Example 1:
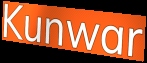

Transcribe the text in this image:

Kunwar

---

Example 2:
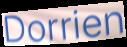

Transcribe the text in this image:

Dorrien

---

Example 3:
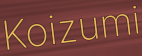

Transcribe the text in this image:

Koizumi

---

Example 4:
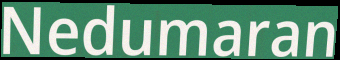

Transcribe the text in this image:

Nedumaran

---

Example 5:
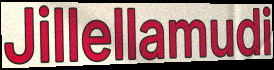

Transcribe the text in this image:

Jillellamudi